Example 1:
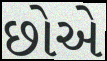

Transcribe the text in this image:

છોએ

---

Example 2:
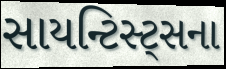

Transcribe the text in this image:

સાયન્ટિસ્ટ્સના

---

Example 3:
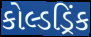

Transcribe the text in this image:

કોલ્ડડ્રિંક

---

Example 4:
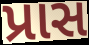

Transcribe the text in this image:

પ્રાસ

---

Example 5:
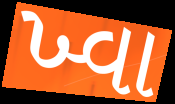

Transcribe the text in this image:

ખ્વા